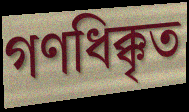
গণধিক্কৃত